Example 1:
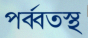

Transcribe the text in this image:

পর্ব্বতস্থ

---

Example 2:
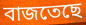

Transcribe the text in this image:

বাজতেছে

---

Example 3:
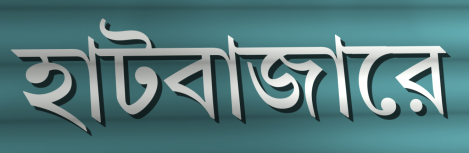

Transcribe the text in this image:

হাটবাজারে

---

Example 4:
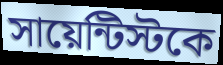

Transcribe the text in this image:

সায়েন্টিস্টকে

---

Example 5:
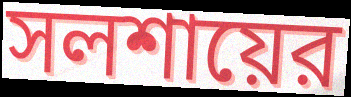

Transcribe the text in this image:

সলশায়ের